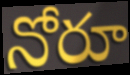
నోరూ